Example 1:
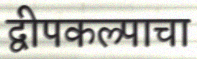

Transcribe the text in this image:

द्वीपकल्पाचा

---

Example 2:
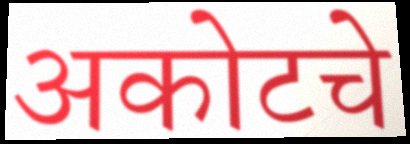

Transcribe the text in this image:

अकोटचे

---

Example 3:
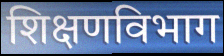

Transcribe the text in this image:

शिक्षणविभाग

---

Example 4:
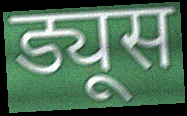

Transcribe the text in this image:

ड्यूस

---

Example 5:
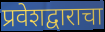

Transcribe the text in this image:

प्रवेशद्वाराचा